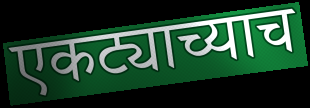
एकट्याच्याच